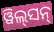
ୱିଲ୍‌ସନ୍